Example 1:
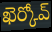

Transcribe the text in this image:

ఖెర్కోవ్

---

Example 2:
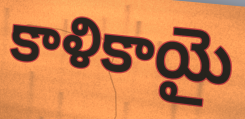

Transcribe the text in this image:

కాళికాయై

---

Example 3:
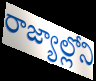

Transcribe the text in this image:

రాజ్యాల్లోని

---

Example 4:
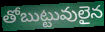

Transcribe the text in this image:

తోబుట్టువులైన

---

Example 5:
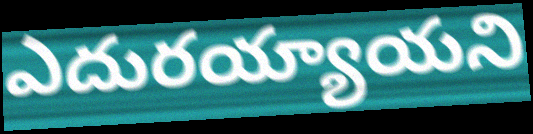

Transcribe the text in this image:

ఎదురయ్యాయని